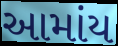
આમાંય